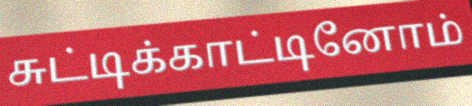
சுட்டிக்காட்டினோம்